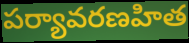
పర్యావరణహిత